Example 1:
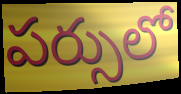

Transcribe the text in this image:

పర్సులో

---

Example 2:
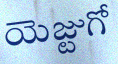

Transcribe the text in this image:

యెజ్టుగో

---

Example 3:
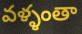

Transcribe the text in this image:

వళ్ళంతా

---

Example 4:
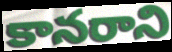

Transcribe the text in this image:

కానరాని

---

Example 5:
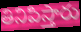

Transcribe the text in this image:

తినిపిస్తారు